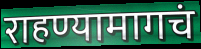
राहण्यामागचं